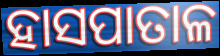
ହାସପାତାଳ